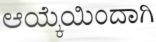
ಆಯ್ಕೆಯಿಂದಾಗಿ